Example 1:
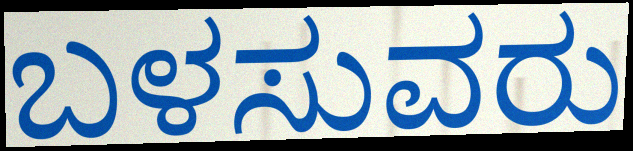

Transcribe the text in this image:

ಬಳಸುವರು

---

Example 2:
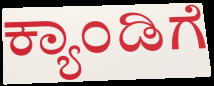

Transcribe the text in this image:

ಕ್ಯಾಂಡಿಗೆ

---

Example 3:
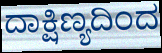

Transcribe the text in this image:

ದಾಕ್ಷಿಣ್ಯದಿಂದ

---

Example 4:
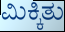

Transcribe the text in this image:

ಮಿಕ್ಕಿತು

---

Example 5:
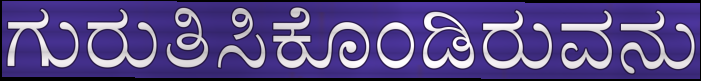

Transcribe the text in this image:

ಗುರುತಿಸಿಕೊಂಡಿರುವನು